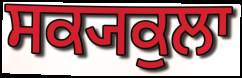
ਸਕ੍ਯਕੁਲਾ